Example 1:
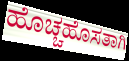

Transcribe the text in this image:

ಹೊಚ್ಚಹೊಸತಾಗಿ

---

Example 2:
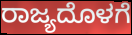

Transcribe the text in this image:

ರಾಜ್ಯದೊಳಗೆ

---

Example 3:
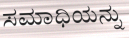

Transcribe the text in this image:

ಸಮಾಧಿಯನ್ನು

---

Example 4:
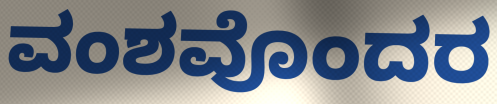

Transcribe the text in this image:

ವಂಶವೊಂದರ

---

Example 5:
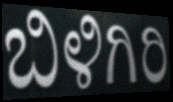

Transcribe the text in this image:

ಬಿಳಿಗಿರಿ